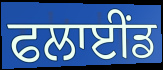
ਫਲਾਈਂਡ